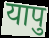
यापु